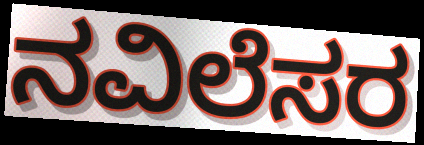
ನವಿಲೆಸರ